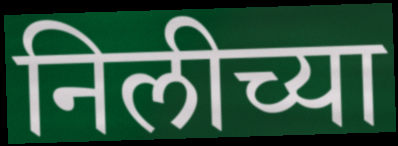
निलीच्या